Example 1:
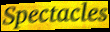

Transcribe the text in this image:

Spectacles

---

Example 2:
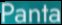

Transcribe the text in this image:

Panta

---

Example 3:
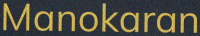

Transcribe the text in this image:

Manokaran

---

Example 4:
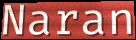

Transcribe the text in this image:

Naran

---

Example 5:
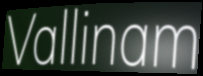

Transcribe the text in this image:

Vallinam